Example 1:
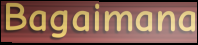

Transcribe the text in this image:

Bagaimana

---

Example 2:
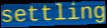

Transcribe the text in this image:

settling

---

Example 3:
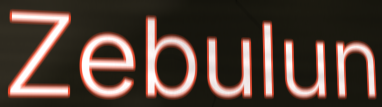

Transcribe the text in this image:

Zebulun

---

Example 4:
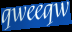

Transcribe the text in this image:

qweeqw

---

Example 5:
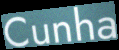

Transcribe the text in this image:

Cunha